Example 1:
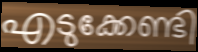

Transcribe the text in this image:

എടുക്കേണ്ടി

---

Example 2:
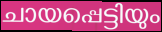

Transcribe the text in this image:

ചായപ്പെട്ടിയും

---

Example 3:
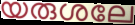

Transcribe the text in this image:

യരുശലേ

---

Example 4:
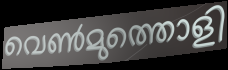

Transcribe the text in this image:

വെൺമുത്തൊളി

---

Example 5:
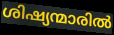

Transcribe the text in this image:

ശിഷ്യന്മാരിൽ